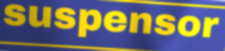
suspensor